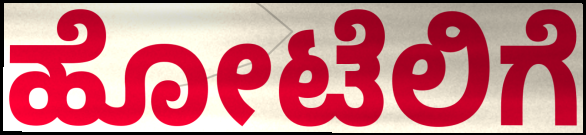
ಹೋಟೆಲಿಗೆ